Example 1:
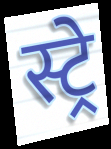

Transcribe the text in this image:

स्ट्रे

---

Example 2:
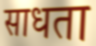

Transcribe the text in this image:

साधता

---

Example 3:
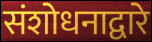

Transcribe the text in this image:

संशोधनाद्वारे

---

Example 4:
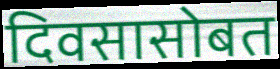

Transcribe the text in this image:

दिवसासोबत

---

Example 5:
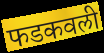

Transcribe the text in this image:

फडकवली